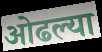
ओढल्या